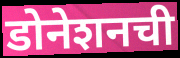
डोनेशनची